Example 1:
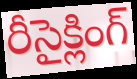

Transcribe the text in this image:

రీసైక్లింగ్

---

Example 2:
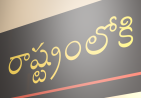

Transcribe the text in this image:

రాష్ట్రంలోకి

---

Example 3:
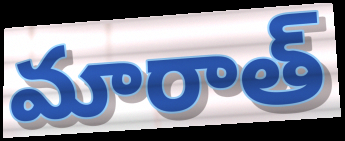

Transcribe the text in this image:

మారాత్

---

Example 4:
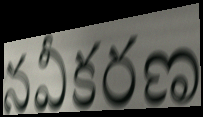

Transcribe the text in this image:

నవీకరణ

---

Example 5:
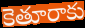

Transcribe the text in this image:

కెతూరాకు